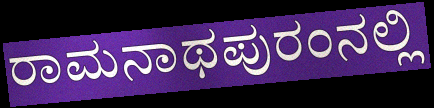
ರಾಮನಾಥಪುರಂನಲ್ಲಿ